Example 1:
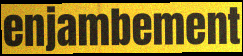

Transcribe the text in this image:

enjambement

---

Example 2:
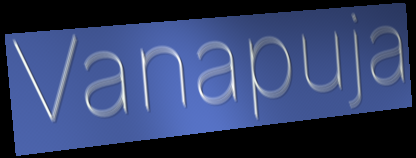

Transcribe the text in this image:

Vanapuja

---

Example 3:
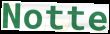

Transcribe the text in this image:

Notte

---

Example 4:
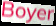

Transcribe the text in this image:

Boyer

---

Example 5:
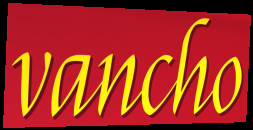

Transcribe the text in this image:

vancho